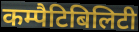
कम्पैटिबिलिटी